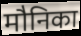
मौनिका